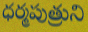
ధర్మపుత్రుని